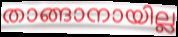
താങ്ങാനായില്ല